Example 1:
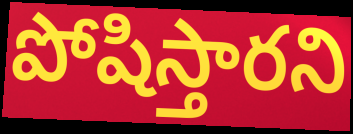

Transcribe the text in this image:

పోషిస్తారని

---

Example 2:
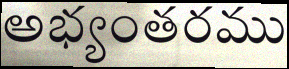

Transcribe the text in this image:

అభ్యంతరము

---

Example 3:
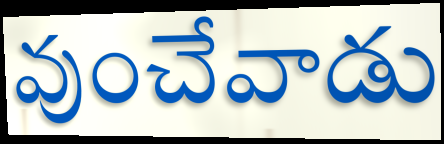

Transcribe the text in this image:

వుంచేవాడు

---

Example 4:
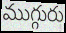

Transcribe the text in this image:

ముగ్గురు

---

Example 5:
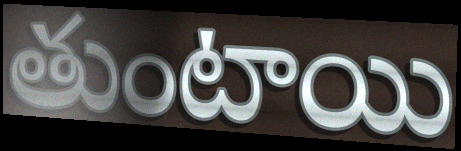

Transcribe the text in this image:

తుంటాయి